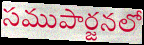
సముపార్జనలో